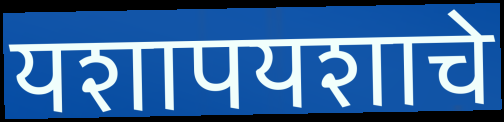
यशापयशाचे